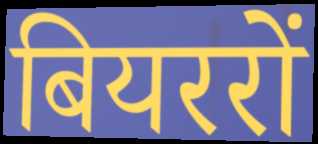
बियररों